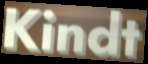
Kindt